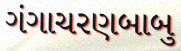
ગંગાચરણબાબુ